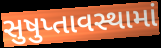
સુષુપ્તાવસ્થામાં